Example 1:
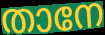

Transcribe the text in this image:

താനേ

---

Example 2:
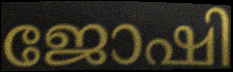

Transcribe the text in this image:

ജോഷി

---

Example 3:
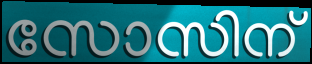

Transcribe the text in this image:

സോസിന്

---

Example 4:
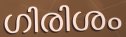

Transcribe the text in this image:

ഗിരിശം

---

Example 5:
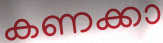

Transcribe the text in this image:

കണക്കാ